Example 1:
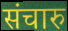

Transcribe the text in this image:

संचारु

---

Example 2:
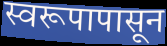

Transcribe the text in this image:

स्वरूपापासून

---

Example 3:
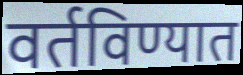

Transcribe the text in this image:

वर्तविण्यात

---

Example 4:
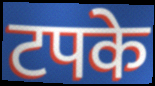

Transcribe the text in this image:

टपके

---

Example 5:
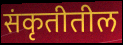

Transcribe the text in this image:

संकृतीतील